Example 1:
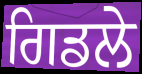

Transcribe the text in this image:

ਗਿਡਲੇ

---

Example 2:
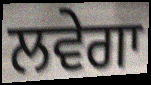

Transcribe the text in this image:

ਲਵੇਗਾ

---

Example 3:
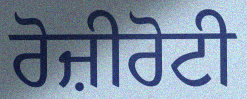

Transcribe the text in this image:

ਰੋਜ਼ੀਰੋਟੀ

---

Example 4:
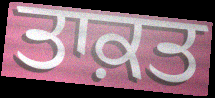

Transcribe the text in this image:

ਤਾਕ਼ਤ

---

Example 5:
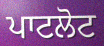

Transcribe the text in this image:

ਪਾਟਲੋਟ